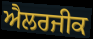
ਐਲਰਜੀਕ